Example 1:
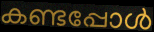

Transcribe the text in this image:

കണ്ടപ്പോൾ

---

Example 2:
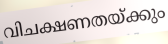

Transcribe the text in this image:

വിചക്ഷണതയ്ക്കും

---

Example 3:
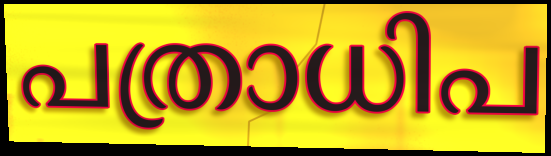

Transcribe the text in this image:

പത്രാധിപ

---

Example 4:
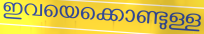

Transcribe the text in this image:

ഇവയെക്കൊണ്ടുള്ള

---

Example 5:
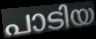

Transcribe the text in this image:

പാടിയ